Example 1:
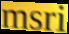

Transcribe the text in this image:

msri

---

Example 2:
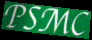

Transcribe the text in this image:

PSMC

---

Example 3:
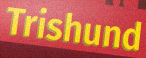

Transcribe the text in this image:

Trishund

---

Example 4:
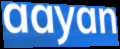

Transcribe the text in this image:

aayan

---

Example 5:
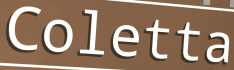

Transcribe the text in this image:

Coletta